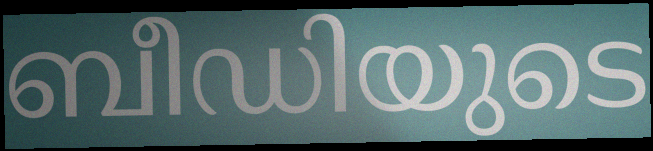
ബീഡിയുടെ